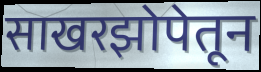
साखरझोपेतून